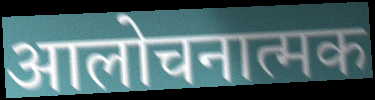
आलोचनात्मक